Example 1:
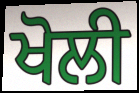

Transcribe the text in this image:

ਖੋਲੀ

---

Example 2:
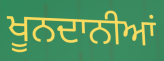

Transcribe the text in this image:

ਖੂਨਦਾਨੀਆਂ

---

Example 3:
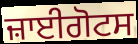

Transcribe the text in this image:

ਜ਼ਾਈਗੋਟਸ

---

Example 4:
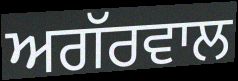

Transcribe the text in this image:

ਅਗੱਰਵਾਲ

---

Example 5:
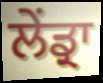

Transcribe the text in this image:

ਲੇਂਡ੍ਰਾ